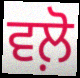
ਵਲ਼ੋ